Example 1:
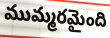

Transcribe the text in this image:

ముమ్మరమైంది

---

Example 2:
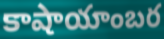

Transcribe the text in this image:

కాషాయాంబర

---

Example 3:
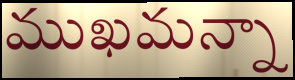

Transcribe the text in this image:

ముఖమన్నా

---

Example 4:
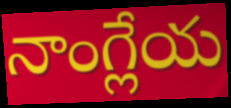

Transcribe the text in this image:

నాంగ్లేయ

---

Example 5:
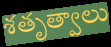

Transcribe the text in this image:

శతృత్వాలు